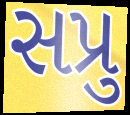
સપ્રુ